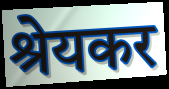
श्रेयकर